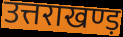
उत्तराखण्ड़